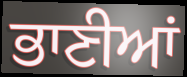
ਭਾਣੀਆਂ